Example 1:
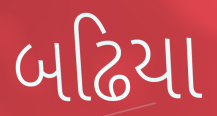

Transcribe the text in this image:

બઢિયા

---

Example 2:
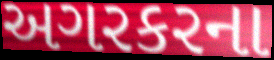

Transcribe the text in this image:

અગરકરના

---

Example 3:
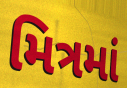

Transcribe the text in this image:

મિત્રમાં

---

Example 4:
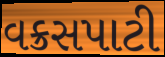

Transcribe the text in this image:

વક્રસપાટી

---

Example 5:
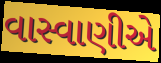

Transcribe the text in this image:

વાસ્વાણીએ